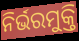
ନିର୍ଭରମୁକ୍ତି